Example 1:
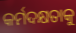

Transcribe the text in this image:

କର୍ମଦକ୍ଷତାକୁ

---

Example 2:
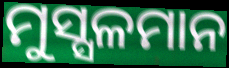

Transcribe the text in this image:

ମୁସ୍ସଳମାନ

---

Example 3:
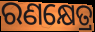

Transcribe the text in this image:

ରଣକ୍ଷେତ୍ର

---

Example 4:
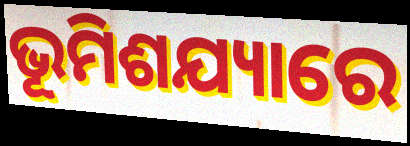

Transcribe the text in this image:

ଭୂମିଶଯ୍ୟାରେ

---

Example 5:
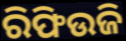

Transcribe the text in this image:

ରିଫିଉଜି